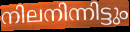
നിലനിന്നിട്ടും